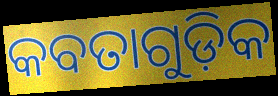
କବତାଗୁଡ଼ିକ